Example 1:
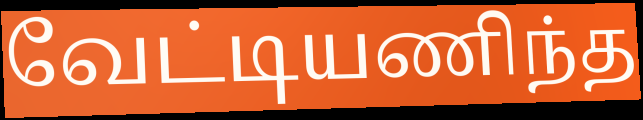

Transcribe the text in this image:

வேட்டியணிந்த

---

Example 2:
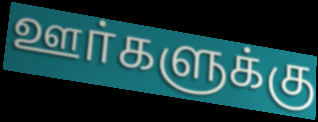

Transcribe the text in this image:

ஊர்களுக்கு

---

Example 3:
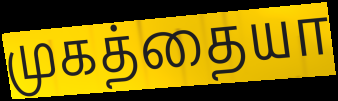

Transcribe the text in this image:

முகத்தையா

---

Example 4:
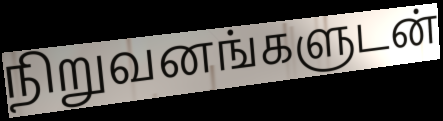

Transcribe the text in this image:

நிறுவனங்களுடன்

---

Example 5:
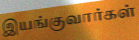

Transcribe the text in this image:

இயங்குவார்கள்